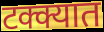
टक्क्यात